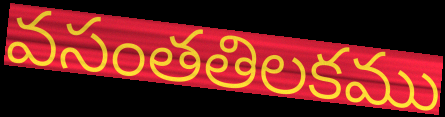
వసంతతిలకము